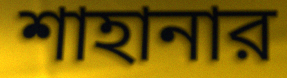
শাহানার